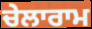
ਚੇਲਾਰਾਮ